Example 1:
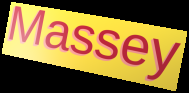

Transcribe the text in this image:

Massey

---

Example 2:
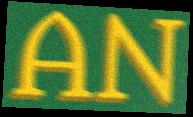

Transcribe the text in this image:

AN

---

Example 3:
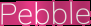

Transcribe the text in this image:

Pebble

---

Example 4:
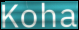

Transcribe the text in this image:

Koha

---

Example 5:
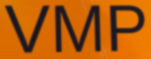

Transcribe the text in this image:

VMP